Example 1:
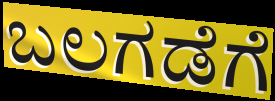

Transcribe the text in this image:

ಬಲಗಡೆಗೆ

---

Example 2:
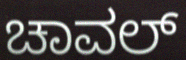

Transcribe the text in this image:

ಚಾವಲ್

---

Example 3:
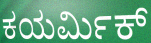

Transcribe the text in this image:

ಕಯರ್ಮಿಕ್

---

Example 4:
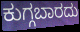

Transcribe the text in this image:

ಕುಗ್ಗಬಾರದು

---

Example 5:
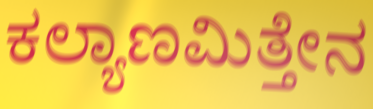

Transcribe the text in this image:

ಕಲ್ಯಾಣಮಿತ್ತೇನ